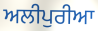
ਅਲੀਪੁਰੀਆ